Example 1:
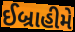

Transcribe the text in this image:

ઈબ્રાહીમે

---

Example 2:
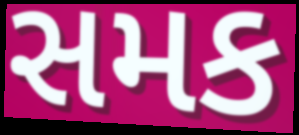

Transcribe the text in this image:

સમક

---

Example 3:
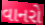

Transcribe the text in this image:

વાનરો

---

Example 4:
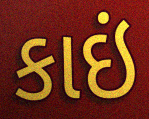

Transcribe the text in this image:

કાઇં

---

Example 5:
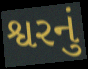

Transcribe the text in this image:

શ્વરનું